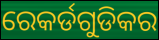
ରେକର୍ଡଗୁଡିକର